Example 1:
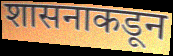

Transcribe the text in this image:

शासनाकडून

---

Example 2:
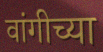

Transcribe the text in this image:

वांगीच्या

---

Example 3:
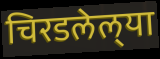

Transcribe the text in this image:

चिरडलेल्या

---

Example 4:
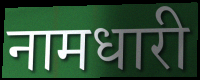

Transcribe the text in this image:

नामधारी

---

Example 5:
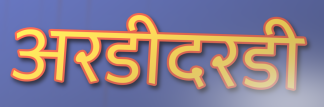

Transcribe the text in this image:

अरडीदरडी